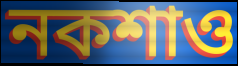
নকশাও